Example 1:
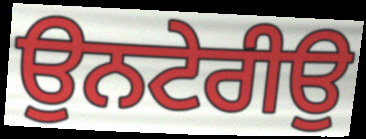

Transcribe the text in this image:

ਉਨਟੇਰੀਉ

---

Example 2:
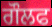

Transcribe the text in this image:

ਗੌਲਫ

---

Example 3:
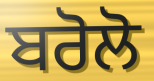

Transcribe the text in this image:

ਬਰੋਲੋ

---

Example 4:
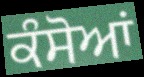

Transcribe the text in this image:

ਕੰਸੋਆਂ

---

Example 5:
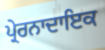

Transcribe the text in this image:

ਪ੍ਰੇਰਨਾਦਾਇਕ